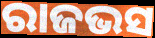
ରାଜଭସ